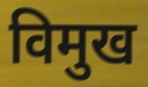
विमुख